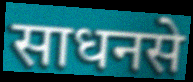
साधनसे